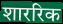
शाररिक